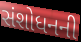
સંશોધનની